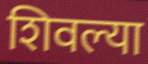
शिवल्या